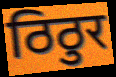
ठिठुर